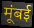
मूंबई